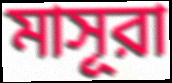
মাসূরা